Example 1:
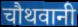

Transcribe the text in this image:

चौथवानी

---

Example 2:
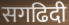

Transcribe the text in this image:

सगढिदी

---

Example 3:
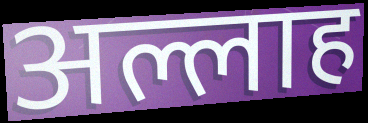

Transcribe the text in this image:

अल्लाह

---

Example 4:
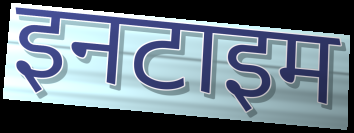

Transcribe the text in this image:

इनटाइम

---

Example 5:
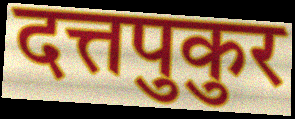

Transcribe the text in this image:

दत्तपुकुर